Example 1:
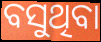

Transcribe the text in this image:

ବସୁଥିବା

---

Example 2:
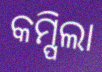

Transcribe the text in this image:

କମ୍ପିଲା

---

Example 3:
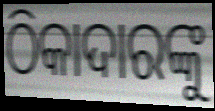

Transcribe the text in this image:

ଠିକାଦାରଙ୍କୁ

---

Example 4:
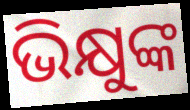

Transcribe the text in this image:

ଭିକ୍ଷୁଙ୍କ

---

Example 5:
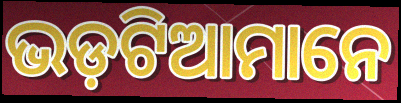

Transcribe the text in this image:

ଭଡ଼ଟିଆମାନେ